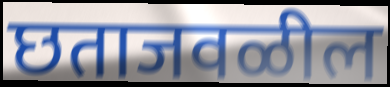
छताजवळील